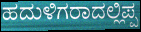
ಹದುಳಿಗರಾದಲ್ಲಿಪ್ಪ